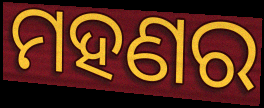
ମହଣର